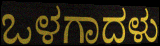
ಒಳಗಾದಳು